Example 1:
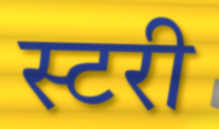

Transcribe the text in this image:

स्टरी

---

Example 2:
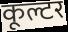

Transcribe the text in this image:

कूल्टर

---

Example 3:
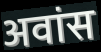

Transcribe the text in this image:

अवांस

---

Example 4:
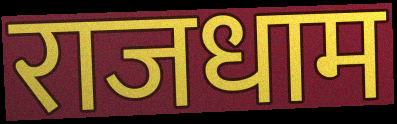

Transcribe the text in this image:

राजधाम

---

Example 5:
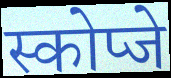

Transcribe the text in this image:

स्कोप्जे